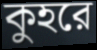
কুহরে